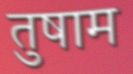
तुषाम